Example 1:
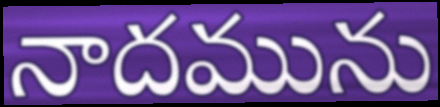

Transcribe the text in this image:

నాదమును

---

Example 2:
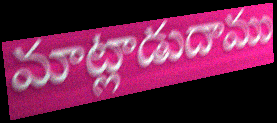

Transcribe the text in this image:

మాట్లాడుదాము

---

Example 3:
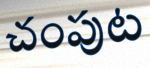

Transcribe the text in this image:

చంపుట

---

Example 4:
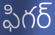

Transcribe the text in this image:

ఫిగర్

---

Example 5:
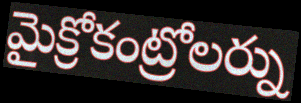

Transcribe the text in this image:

మైక్రోకంట్రోలర్ను